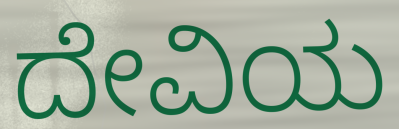
ದೇವಿಯ